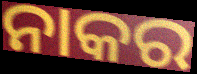
ନାକର